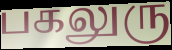
பகலுரு